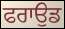
ਫਰਾਉਡ